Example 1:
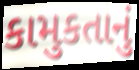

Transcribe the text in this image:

કામુકતાનું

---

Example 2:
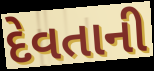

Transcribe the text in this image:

દેવતાની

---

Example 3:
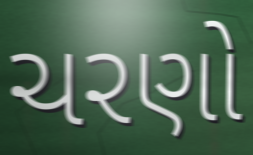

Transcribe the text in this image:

ચરણો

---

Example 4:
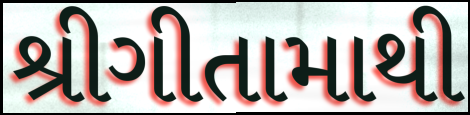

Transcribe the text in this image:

શ્રીગીતામાથી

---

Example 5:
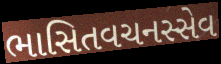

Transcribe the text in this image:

ભાસિતવચનસ્સેવ